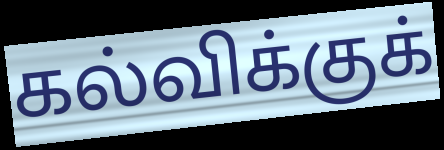
கல்விக்குக்